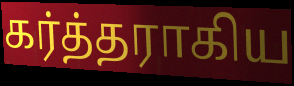
கர்த்தராகிய